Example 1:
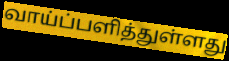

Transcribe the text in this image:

வாய்ப்பளித்துள்ளது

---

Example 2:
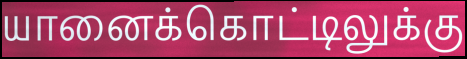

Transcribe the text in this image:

யானைக்கொட்டிலுக்கு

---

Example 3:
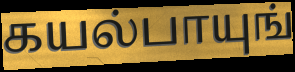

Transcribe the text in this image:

கயல்பாயுங்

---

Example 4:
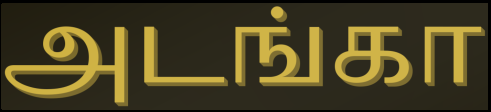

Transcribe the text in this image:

அடங்கா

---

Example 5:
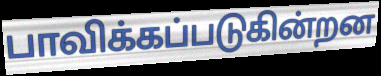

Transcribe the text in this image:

பாவிக்கப்படுகின்றன